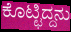
ಕೊಟ್ಟಿದ್ದನು